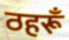
ठहरूँ